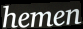
hemen